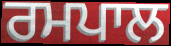
ਰਮਪਾਲ